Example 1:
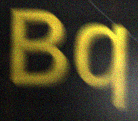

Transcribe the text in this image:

Bq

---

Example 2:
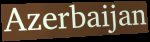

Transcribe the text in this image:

Azerbaijan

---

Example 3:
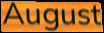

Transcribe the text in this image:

August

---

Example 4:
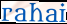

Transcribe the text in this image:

rahai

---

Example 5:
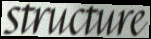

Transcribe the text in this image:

structure